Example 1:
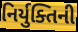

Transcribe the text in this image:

નિર્યુક્તિની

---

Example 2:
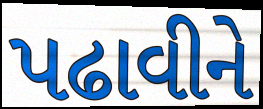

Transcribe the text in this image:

પઢાવીને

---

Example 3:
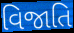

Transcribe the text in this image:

વિજાતિ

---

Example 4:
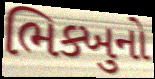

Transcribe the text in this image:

ભિક્ખુનો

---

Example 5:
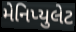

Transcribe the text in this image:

મેનિપ્યુલેટ